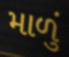
માળું